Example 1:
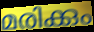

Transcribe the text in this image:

മരിക്കും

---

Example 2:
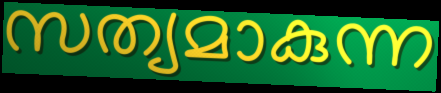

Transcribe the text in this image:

സത്യമാകുന്ന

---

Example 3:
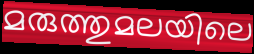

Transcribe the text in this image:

മരുത്തുമലയിലെ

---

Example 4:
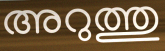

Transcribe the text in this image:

അറുത്തു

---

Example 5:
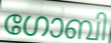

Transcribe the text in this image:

ഗോബി